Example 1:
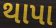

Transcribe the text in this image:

થાપા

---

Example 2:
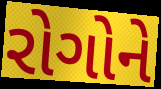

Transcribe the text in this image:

રોગોને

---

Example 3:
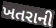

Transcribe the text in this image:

ખતરાની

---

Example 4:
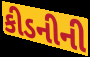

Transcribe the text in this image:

કીડનીની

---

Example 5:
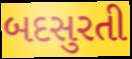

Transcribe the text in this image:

બદસુરતી